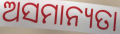
ଅସମାନ୍ୟତା